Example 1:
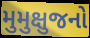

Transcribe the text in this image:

મુમુક્ષુજનો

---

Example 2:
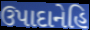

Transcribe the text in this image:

ઉપાદાનેહિ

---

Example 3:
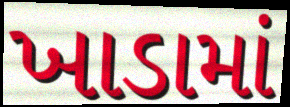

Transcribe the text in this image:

ખાડામાં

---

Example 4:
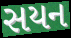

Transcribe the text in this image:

સયન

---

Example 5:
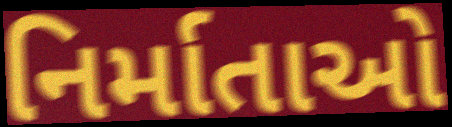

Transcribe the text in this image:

નિર્માતાઓ